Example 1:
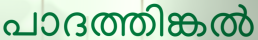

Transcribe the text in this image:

പാദത്തിങ്കൽ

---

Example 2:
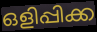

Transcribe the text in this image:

ഒളിപ്പിക്ക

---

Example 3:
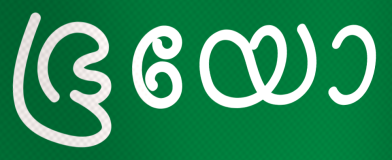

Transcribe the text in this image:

ഭൂയോ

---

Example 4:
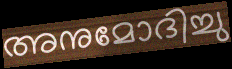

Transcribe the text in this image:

അനുമോദിച്ചു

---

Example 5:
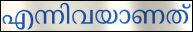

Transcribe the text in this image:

എന്നിവയാണത്